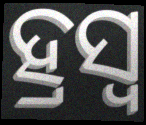
ହ୍ରସ୍ୱ